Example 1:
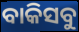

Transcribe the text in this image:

ବାକିସବୁ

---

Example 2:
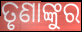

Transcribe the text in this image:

ତୃଣାଙ୍କୁର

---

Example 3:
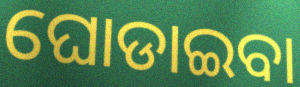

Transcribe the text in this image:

ଘୋଡାଇବା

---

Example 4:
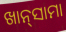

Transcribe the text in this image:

ଖାନ୍‍ସାମା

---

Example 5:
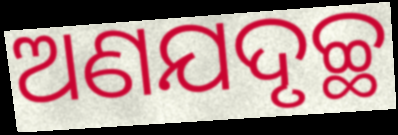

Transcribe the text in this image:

ଅଣଯଦୃଚ୍ଛ